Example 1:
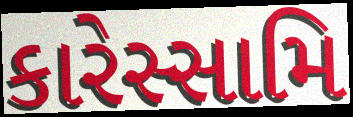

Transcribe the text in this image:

કારેસ્સામિ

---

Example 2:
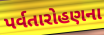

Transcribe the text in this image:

પર્વતારોહણના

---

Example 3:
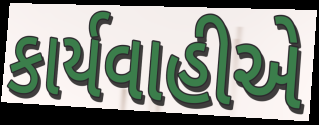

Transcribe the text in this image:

કાર્યવાહીએ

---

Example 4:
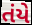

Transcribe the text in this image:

તંયે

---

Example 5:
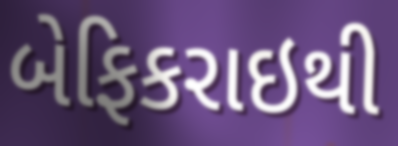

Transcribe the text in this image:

બેફિકરાઇથી